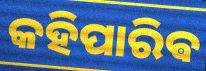
କହିପାରିଵ